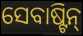
ସେବାଷ୍ଟିନ୍